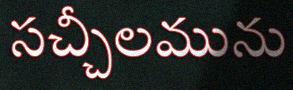
సచ్చీలమును